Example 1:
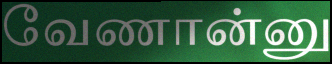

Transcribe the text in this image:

வேணான்னு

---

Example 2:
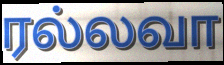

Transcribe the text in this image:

ரல்லவா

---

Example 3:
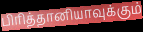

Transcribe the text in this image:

பிரித்தானியாவுக்கும்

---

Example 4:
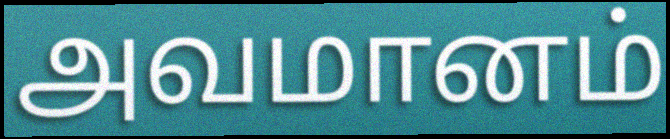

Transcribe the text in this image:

அவமானம்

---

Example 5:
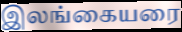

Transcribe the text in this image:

இலங்கையரை